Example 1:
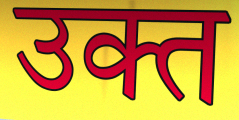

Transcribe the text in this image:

उक्‍त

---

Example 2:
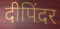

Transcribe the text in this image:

दीपिंदर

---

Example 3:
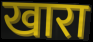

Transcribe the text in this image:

खारा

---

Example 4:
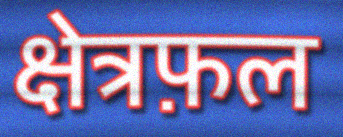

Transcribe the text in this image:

क्षेत्रफ़ल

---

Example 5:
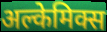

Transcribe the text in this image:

अल्केमिक्स